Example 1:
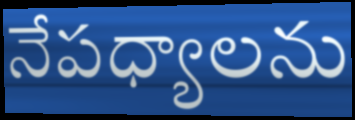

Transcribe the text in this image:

నేపధ్యాలను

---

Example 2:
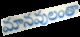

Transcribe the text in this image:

మానవులంతా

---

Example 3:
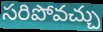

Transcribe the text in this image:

సరిపోవచ్చు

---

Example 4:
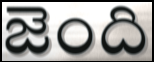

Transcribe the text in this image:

జెంది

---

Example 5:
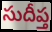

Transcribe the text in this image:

సుదీప్త